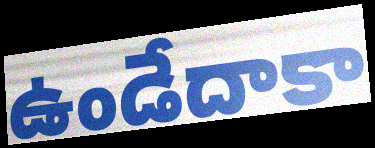
ఉండేదాకా